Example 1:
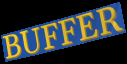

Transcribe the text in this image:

BUFFER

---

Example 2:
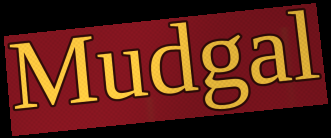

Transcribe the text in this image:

Mudgal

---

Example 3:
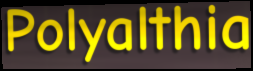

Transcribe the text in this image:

Polyalthia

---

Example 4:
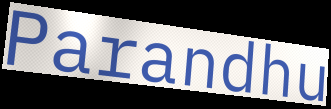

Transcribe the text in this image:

Parandhu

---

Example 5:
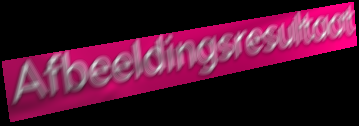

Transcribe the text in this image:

Afbeeldingsresultaat